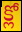
క్లో